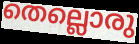
തെല്ലൊരു